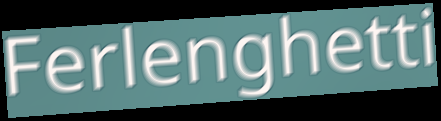
Ferlenghetti